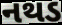
નથડ